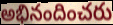
అభినందించరు